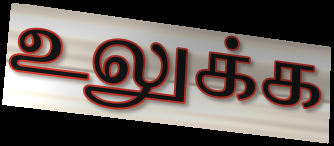
உலுக்க